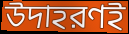
উদাহরণই